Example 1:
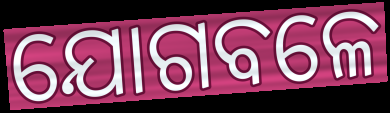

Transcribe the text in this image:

ଯୋଗବଳେ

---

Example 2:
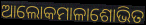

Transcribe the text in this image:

ଆଲୋକମାଳାଶୋଭିତ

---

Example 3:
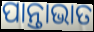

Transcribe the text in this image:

ପାନ୍ତାଭାତ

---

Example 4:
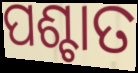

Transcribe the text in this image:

ପଶ୍ଚାତ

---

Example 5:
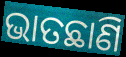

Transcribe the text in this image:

ଭାତଛାଣି